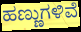
ಹಣ್ಣುಗಳಿವೆ